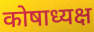
कोषाध्यक्ष